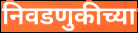
निवडणुकीच्या